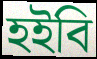
হইবি